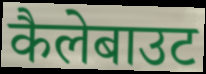
कैलेबाउट